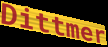
Dittmer